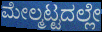
ಮೇಲ್ಮಟ್ಟದಲ್ಲೇ